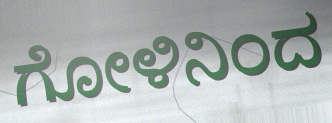
ಗೋಳಿನಿಂದ